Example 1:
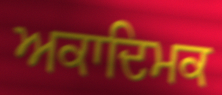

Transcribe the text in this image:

ਅਕਾਦਿਮਕ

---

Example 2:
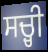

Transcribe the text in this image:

ਸਚ੍ਚੀ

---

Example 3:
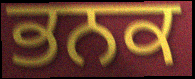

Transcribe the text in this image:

ਭਨਕ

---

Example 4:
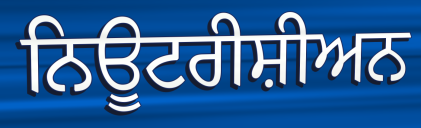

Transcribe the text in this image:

ਨਿਊਟਰੀਸ਼ੀਅਨ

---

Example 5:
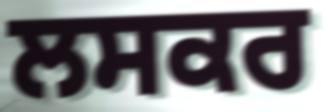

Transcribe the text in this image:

ਲਸਕਰ